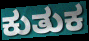
ಕುತುಕ